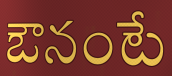
ఔనంటే